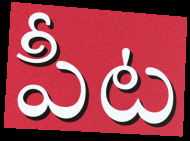
పీట